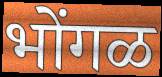
भोंगळ